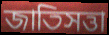
জাতিসত্তা